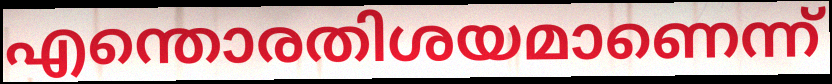
എന്തൊരതിശയമാണെന്ന്